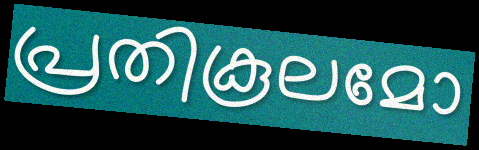
പ്രതികൂലമോ